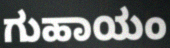
ಗುಹಾಯಂ